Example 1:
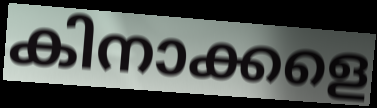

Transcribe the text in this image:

കിനാക്കളെ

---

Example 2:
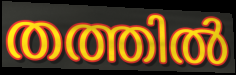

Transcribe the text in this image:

തത്തിൽ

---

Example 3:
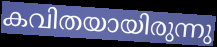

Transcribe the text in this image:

കവിതയായിരുന്നു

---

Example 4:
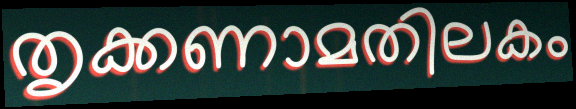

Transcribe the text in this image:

തൃക്കണാമതിലകം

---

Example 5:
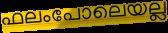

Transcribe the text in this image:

ഫലംപോലെയല്ല